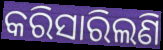
କରିସାରିଲଣି